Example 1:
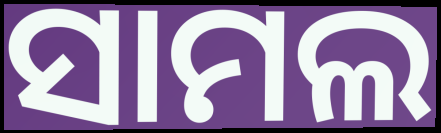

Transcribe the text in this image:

ସାମଲ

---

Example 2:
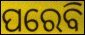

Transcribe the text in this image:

ପରେବି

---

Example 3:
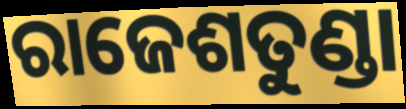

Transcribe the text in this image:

ରାଜେଶତୁଣ୍ଡା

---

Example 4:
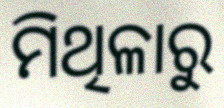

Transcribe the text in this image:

ମିଥିଳାରୁ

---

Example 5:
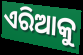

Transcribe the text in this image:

ଏରିଆକୁ